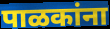
पाळकांना